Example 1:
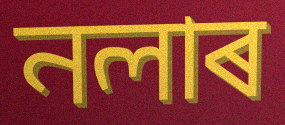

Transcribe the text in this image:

নলাৰ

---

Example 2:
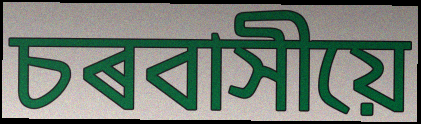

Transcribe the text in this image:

চৰবাসীয়ে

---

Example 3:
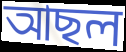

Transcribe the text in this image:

আছল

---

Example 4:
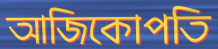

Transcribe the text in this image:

আজিকোপতি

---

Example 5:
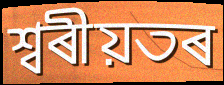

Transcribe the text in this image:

শ্বৰীয়তৰ